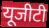
यूजीटी